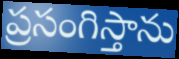
ప్రసంగిస్తాను